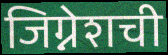
जिग्नेशची